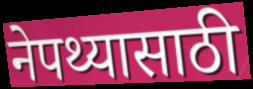
नेपथ्यासाठी